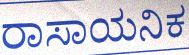
ರಾಸಾಯನಿಕ